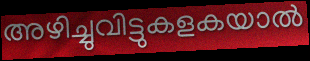
അഴിച്ചുവിട്ടുകളകയാൽ